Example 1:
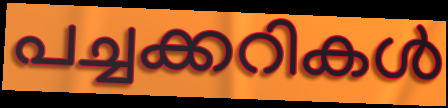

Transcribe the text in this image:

പച്ചക്കറികൾ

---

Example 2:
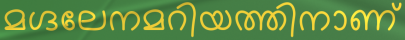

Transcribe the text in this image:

മഗ്ദലേനമറിയത്തിനാണ്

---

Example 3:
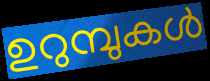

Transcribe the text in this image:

ഉറുമ്പുകൾ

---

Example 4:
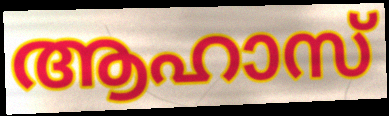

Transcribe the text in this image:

ആഹാസ്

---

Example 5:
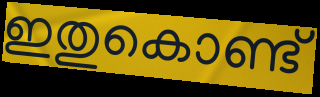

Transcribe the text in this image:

ഇതുകൊണ്ട്